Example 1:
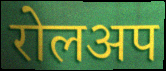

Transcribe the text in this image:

रोलअप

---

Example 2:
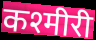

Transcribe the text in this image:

कश्मीरी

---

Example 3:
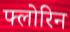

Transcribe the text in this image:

फ्लोरिन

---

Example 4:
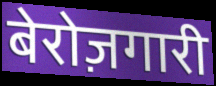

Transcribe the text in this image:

बेरोज़गारी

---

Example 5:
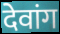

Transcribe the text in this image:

देवांग